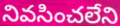
నివసించలేని